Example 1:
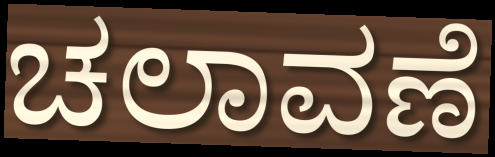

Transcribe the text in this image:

ಚಲಾವಣೆ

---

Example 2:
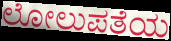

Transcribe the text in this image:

ಲೋಲುಪತೆಯ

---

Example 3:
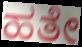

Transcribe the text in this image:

ಹತೇ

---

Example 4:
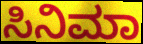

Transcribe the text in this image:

ಸಿನಿಮಾ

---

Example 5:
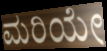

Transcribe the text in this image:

ಮರಿಯೇ